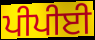
ਪੀਪੀਈ